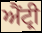
ਐਂਟ੍ਰੀ